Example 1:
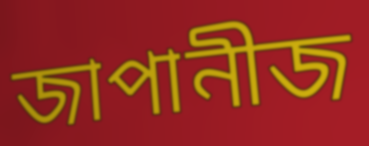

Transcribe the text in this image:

জাপানীজ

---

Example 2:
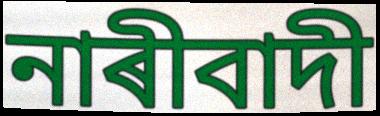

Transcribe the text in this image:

নাৰীবাদী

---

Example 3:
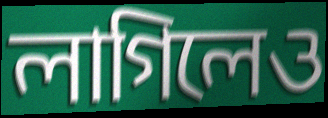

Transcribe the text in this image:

লাগিলেও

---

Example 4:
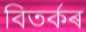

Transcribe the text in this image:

বিতৰ্কৰ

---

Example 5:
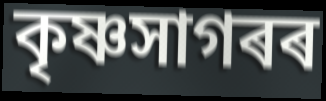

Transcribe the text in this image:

কৃষ্ণসাগৰৰ